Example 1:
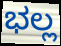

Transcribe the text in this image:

ಭಲ್ಲ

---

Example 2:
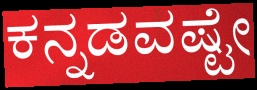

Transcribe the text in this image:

ಕನ್ನಡವಷ್ಟೇ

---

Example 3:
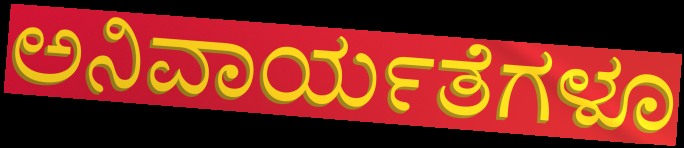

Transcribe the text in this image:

ಅನಿವಾರ್ಯತೆಗಳೂ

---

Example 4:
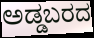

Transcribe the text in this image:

ಅಡ್ಡಬರದ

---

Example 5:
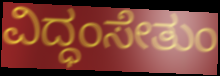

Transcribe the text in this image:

ವಿದ್ಧಂಸೇತುಂ